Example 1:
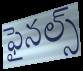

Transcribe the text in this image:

ఫైనల్స్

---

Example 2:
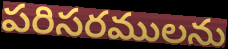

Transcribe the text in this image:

పరిసరములను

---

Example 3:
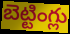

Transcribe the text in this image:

బెట్టింగ్లు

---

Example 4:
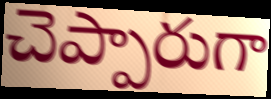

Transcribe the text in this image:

చెప్పారుగా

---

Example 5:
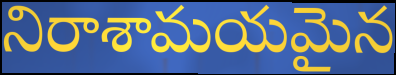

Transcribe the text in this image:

నిరాశామయమైన